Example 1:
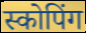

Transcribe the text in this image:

स्कोपिंग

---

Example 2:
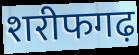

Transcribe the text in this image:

शरीफगढ़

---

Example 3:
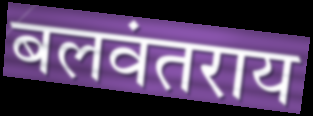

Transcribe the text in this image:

बलवंतराय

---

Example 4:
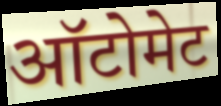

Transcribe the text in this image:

ऑटोमेट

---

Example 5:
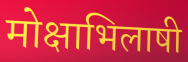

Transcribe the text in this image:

मोक्षाभिलाषी